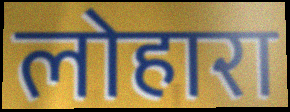
लोहारा